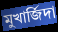
মুখার্জিদা